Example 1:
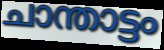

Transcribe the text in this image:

ചാന്താട്ടം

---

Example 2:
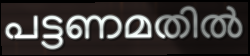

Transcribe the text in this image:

പട്ടണമതിൽ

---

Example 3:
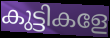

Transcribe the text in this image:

കുട്ടികളേ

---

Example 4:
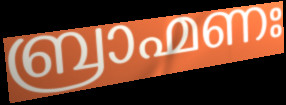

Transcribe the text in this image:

ബ്രാഹ്മണഃ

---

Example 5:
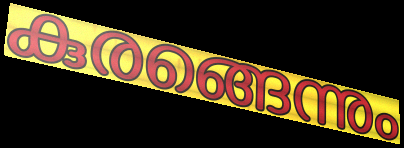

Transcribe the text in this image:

കുരങ്ങെന്നും